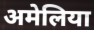
अमेलिया